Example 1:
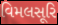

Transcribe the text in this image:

વિમલસૂરિ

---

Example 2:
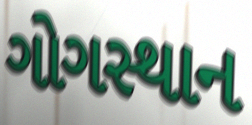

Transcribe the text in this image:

ગોગસ્થાન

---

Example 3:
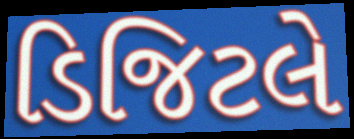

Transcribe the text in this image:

ડિજિટલે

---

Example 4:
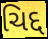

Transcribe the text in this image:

ચિદ્દ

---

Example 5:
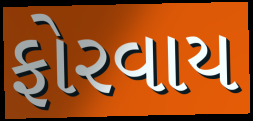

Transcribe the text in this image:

ફોરવાય